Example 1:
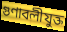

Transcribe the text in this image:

গুণাবলীযুক্ত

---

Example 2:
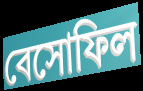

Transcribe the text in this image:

বেসোফিল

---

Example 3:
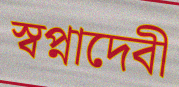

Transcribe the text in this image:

স্বপ্নাদেবী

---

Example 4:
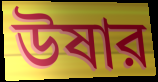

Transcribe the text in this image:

উষার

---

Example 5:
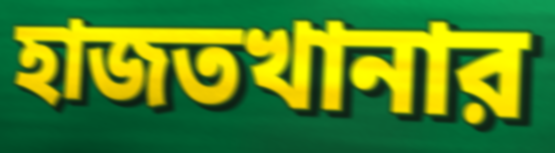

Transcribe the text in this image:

হাজতখানার